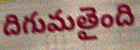
దిగుమతైంది